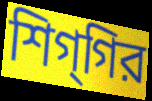
শিগ্‌গির